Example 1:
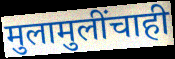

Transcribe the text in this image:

मुलामुलींचाही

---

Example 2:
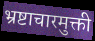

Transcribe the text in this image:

भ्रष्टाचारमुक्ती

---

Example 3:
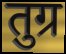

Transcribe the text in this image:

तुग्र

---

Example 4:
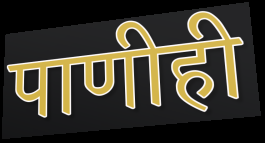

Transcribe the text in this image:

पाणीही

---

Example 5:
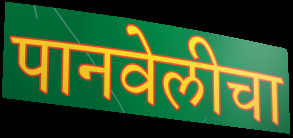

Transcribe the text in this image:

पानवेलीचा